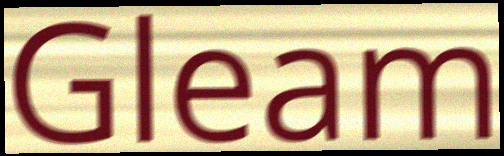
Gleam